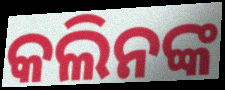
କଲିନଙ୍କ